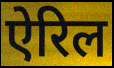
ऐरिल